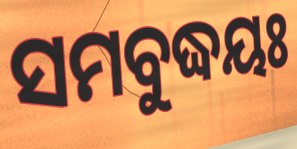
ସମବୁଦ୍ଧୟଃ